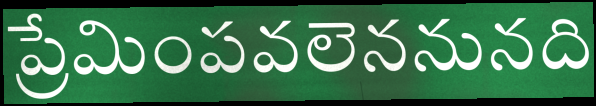
ప్రేమింపవలెననునది